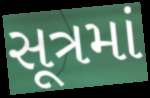
સૂત્રમાં